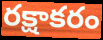
రక్షాకరం